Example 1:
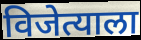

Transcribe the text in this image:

विजेत्याला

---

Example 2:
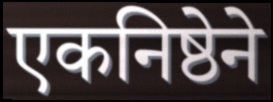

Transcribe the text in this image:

एकनिष्ठेने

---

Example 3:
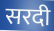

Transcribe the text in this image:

सरदी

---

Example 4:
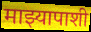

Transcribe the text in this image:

माझ्यापाशी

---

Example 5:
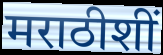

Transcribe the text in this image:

मराठीशीं